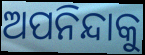
ଅପନିନ୍ଦାକୁ